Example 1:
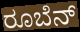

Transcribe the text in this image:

ರೂಬೆನ್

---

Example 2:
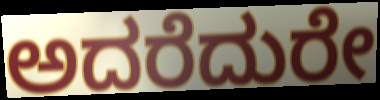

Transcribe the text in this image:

ಅದರೆದುರೇ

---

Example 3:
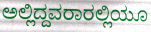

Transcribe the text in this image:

ಅಲ್ಲಿದ್ದವರಾರಲ್ಲಿಯೂ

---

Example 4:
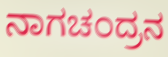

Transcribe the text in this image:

ನಾಗಚಂದ್ರನ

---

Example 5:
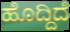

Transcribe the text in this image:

ಹೊದ್ದಿದೆ